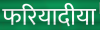
फरियादीया